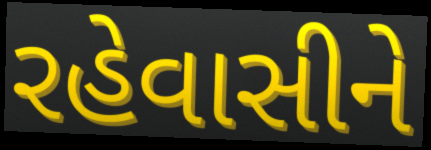
રહેવાસીને